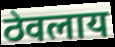
ठेवलाय